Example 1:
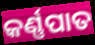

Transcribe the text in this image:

କର୍ଣ୍ଣପାତ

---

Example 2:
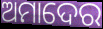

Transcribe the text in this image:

ଅମାଦେର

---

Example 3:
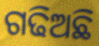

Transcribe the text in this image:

ଗଢିଅଛି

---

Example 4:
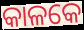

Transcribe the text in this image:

କାଳକେ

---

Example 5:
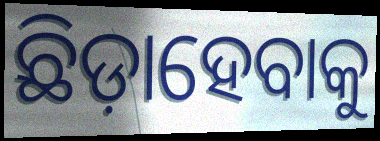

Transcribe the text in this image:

ଛିଡ଼ାହେବାକୁ